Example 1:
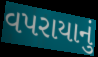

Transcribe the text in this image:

વપરાયાનું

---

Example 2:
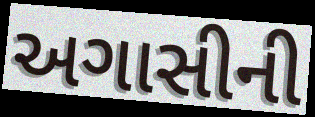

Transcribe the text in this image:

અગાસીની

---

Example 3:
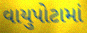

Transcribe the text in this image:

વાયુપોટામાં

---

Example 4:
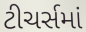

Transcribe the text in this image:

ટીચર્સમાં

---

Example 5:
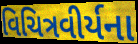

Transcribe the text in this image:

વિચિત્રવીર્યના